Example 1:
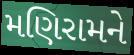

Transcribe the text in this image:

મણિરામને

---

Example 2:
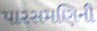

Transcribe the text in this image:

પારસમણિની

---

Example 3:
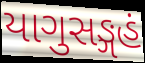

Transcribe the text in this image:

યાગુસઙ્ગહં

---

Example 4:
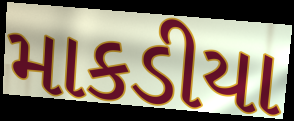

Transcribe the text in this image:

માકડીયા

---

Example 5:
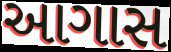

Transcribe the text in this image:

આગાસ